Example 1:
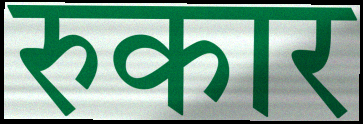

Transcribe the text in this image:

रुकार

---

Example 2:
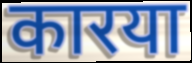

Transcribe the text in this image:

कारया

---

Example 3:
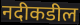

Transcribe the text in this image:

नदीकडील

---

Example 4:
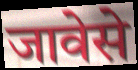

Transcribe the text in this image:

जावेसे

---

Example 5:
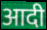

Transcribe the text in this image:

आदी